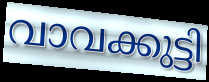
വാവക്കുട്ടി